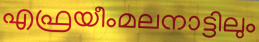
എഫ്രയീംമലനാട്ടിലും